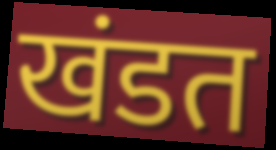
खंडत